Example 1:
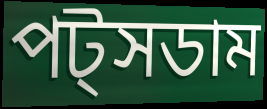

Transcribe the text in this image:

পট্‌সডাম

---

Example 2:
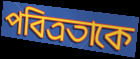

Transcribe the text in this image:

পবিত্রতাকে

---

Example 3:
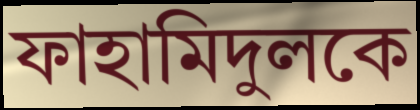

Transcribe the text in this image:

ফাহামিদুলকে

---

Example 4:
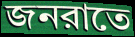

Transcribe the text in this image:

জনরাতে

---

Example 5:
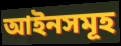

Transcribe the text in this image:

আইনসমূহ